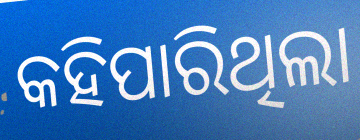
କହିପାରିଥିଲା